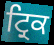
ਟ੍ਰਿਕ